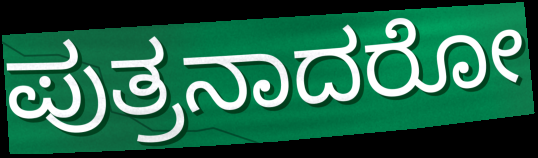
ಪುತ್ರನಾದರೋ